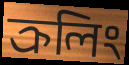
ক্রলিং